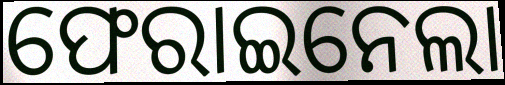
ଫେରାଇନେଲା